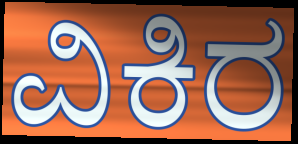
ವಿಕಿರ